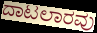
ದಾಟಲಾರವು